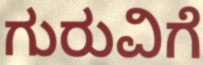
ಗುರುವಿಗೆ